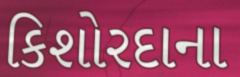
કિશોરદાના